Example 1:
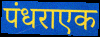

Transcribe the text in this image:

पंधराएक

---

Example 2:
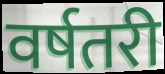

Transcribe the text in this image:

वर्षतरी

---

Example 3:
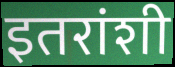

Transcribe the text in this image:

इतरांशी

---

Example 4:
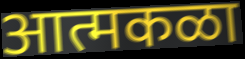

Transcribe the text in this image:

आत्मकळा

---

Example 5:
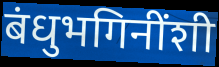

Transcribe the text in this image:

बंधुभगिनींशी